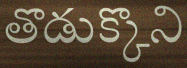
తొడుక్కొని